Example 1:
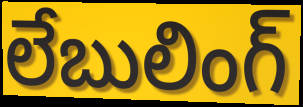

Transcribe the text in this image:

లేబులింగ్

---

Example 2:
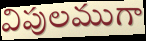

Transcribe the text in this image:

విపులముగా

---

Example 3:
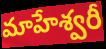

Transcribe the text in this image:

మాహేశ్వరీ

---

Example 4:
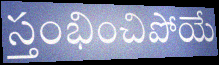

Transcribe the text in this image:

స్తంభించిపోయే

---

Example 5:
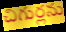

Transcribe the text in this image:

చిగుర్లను